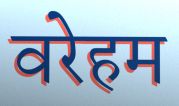
वरेहम